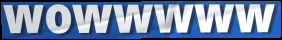
wowwwww